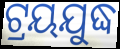
ଟ୍ରୟଯୁଦ୍ଧ